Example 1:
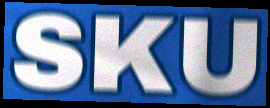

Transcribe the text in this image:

SKU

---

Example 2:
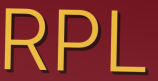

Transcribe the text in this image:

RPL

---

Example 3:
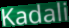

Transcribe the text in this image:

Kadali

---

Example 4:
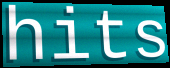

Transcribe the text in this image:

hits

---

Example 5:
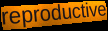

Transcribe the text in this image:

reproductive